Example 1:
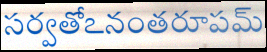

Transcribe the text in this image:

సర్వతోఽనంతరూపమ్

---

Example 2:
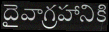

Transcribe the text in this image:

దైవాగ్రహానికి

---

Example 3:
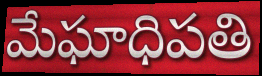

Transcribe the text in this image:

మేఘాధిపతి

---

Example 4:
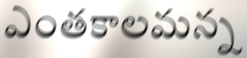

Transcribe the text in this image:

ఎంతకాలమన్న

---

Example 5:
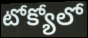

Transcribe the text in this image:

టోక్యోలో